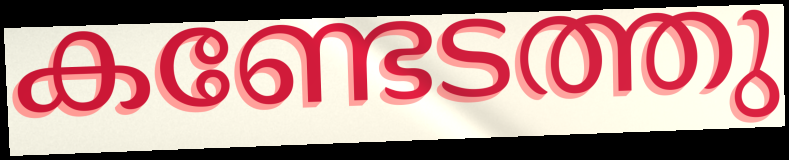
കണ്ടേടത്തു